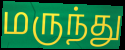
மருந்து